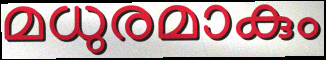
മധുരമാകും